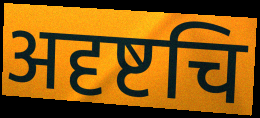
अदृष्टचि